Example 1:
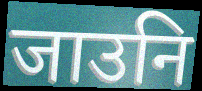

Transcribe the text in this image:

जाउनि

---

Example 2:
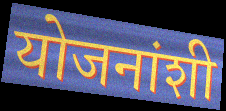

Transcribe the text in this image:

योजनांशी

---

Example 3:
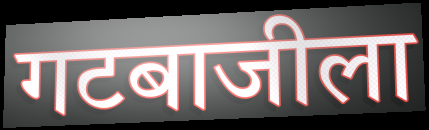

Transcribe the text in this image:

गटबाजीला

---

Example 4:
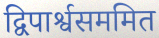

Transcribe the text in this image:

द्विपार्श्वसममित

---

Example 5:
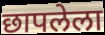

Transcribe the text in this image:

छापलेला